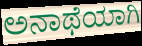
ಅನಾಥೆಯಾಗಿ